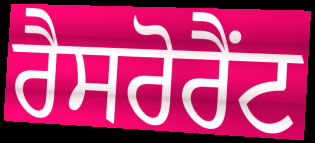
ਰੈਸਰੋਰੈਂਟ